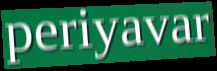
periyavar